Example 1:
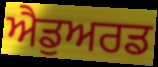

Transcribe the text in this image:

ਐਡੁਅਰਡ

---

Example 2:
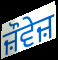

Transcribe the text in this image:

ਜ਼ੌਵੇਜ਼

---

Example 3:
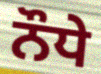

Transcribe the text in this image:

ਨੌਧੇ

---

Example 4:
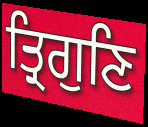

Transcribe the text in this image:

ਤ੍ਰਿਗੁਣਿ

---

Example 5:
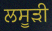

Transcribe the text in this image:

ਲਸੂੜੀ